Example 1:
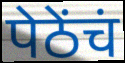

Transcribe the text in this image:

पेठेंचं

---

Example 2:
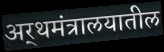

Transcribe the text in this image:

अर्थमंत्रालयातील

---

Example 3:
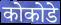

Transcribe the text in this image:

कोकोडे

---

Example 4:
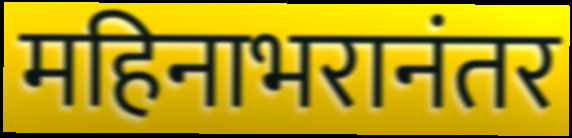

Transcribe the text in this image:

महिनाभरानंतर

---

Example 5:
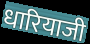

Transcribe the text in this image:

धारियाजी